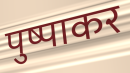
पुष्पाकर